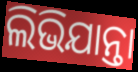
ଲିଭିଯାନ୍ତା